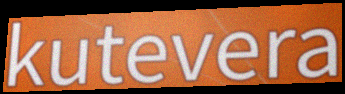
kutevera